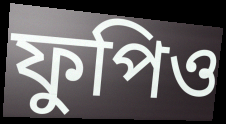
ফুপিও